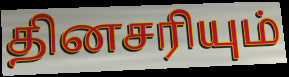
தினசரியும்